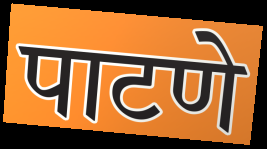
पाटणे